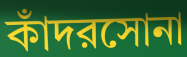
কাঁদরসোনা